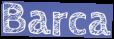
Barca